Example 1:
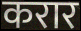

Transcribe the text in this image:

करार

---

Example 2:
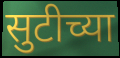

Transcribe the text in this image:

सुटीच्या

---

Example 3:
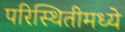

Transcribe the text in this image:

परिस्थितीमध्ये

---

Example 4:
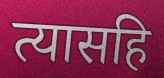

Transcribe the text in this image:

त्यासहि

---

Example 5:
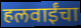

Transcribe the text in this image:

हलवाईंचा